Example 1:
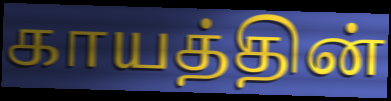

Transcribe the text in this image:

காயத்தின்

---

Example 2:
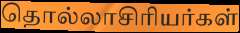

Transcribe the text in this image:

தொல்லாசிரியர்கள்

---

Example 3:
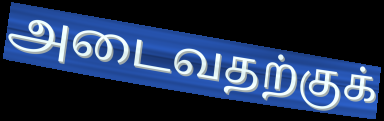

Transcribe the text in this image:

அடைவதற்குக்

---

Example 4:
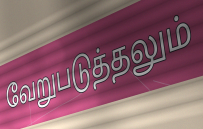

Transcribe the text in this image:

வேறுபடுத்தலும்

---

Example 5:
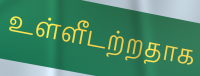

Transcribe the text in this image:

உள்ளீடற்றதாக